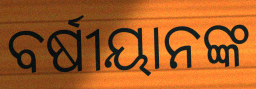
ବର୍ଷୀୟାନଙ୍କ